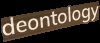
deontology